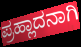
ಪ್ರಹ್ಲಾದನಾಗಿ